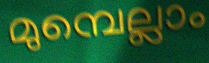
മുമ്പെല്ലാം